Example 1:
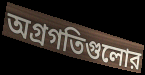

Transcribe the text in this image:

অগ্রগতিগুলোর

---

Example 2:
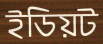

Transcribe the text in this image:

ইডিয়ট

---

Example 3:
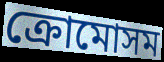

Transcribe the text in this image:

ক্রোমোসম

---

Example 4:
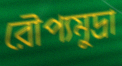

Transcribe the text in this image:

রৌপ্যমুদ্রা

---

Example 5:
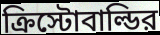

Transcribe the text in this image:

ক্রিস্টোবাল্ডির